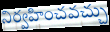
నిర్వహించవచ్చు